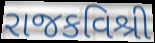
રાજકવિશ્રી